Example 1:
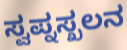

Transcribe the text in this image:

ಸ್ವಪ್ನಸ್ಖಲನ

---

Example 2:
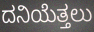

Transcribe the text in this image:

ದನಿಯೆತ್ತಲು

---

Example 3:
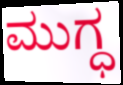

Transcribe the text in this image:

ಮುಗ್ಧ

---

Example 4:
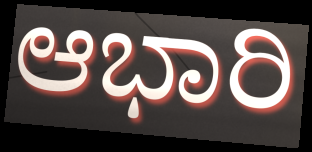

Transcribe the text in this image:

ಆಭಾರಿ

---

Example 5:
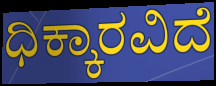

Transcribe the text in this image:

ಧಿಕ್ಕಾರವಿದೆ